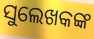
ସୁଲେଖକଙ୍କ